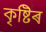
কৃষ্টিৰ